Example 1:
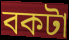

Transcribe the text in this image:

বকটা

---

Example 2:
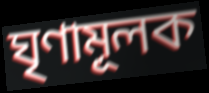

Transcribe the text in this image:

ঘৃণামূলক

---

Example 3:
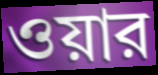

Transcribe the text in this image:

ওয়ার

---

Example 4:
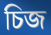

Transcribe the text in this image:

চিজ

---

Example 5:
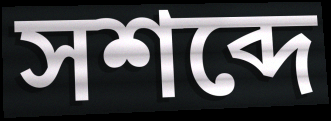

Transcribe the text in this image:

সশব্দে